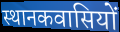
स्थानकवासियों